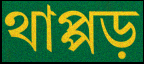
থাপ্পড়